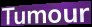
Tumour